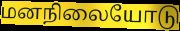
மனநிலையோடு